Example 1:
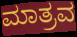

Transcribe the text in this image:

ಮಾತ್ರವ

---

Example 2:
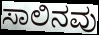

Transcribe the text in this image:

ಸಾಲಿನವು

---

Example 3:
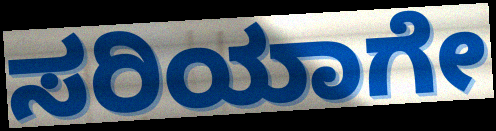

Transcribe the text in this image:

ಸರಿಯಾಗೇ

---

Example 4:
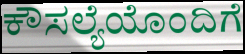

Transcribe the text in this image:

ಕೌಸಲ್ಯೆಯೊಂದಿಗೆ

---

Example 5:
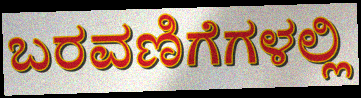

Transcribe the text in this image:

ಬರವಣಿಗೆಗಳಲ್ಲಿ